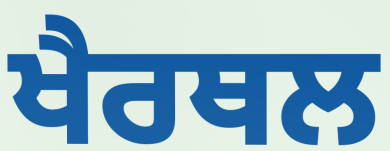
ਖੈਰਥਲ